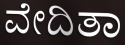
ವೇದಿತಾ